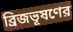
ব্রিজভূষণের